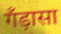
गँड़ासा